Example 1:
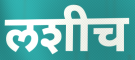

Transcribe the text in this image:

लशीच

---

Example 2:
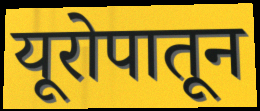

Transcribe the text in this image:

यूरोपातून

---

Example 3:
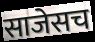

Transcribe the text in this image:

साजेसच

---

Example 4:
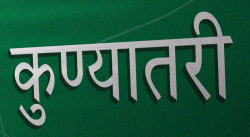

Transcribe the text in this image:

कुण्यातरी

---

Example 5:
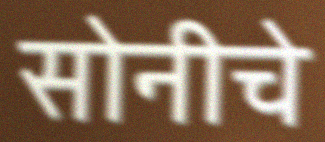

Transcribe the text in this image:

सोनीचे